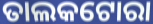
ତାଲକଟୋରା